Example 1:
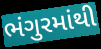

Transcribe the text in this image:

ભંગુરમાંથી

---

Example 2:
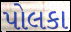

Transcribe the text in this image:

પોલકા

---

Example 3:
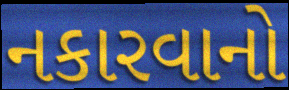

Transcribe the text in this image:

નકારવાનો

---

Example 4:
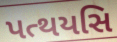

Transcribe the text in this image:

પત્થયસિ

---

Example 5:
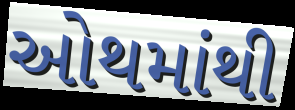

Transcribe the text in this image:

ઓથમાંથી